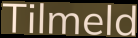
Tilmeld